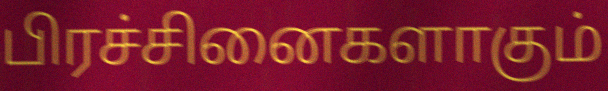
பிரச்சினைகளாகும்